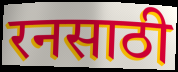
रनसाठी